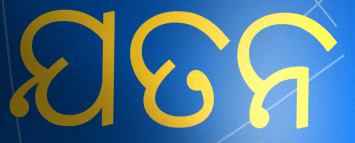
ଯତନ